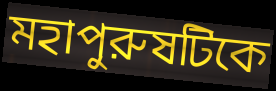
মহাপুরুষটিকে